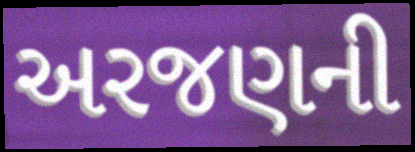
અરજણની